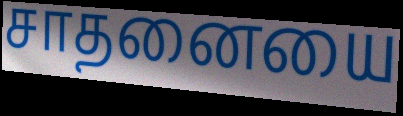
சாதனையை